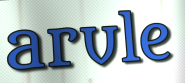
arule